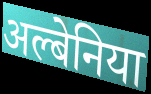
अल्बेनिया